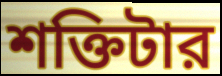
শক্তিটার